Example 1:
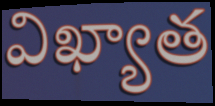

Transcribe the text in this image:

విఖ్యాత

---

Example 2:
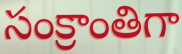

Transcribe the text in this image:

సంక్రాంతిగా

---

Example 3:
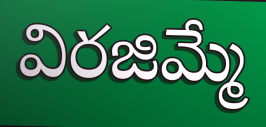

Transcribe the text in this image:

విరజిమ్మే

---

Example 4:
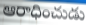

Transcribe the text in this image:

ఆరాధించుడు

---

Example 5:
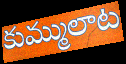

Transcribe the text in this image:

కుమ్ములాట